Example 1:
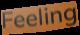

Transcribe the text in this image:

Feeling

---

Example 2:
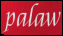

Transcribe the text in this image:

palaw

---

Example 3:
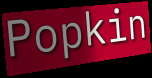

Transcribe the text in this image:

Popkin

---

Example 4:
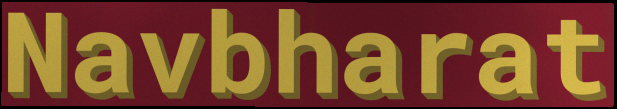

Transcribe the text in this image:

Navbharat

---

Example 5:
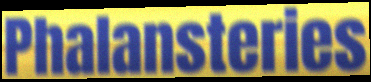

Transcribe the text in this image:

Phalansteries